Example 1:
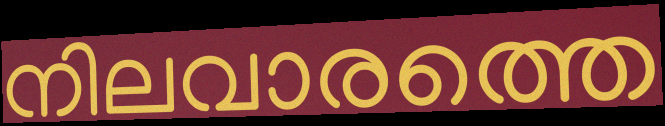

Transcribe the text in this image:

നിലവാരത്തെ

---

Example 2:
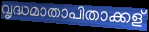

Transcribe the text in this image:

വൃദ്ധമാതാപിതാക്കള്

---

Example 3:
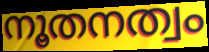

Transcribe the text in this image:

നൂതനത്വം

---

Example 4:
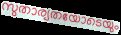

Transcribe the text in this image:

സുതാര്യതയോടെയും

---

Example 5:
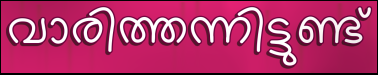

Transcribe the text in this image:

വാരിത്തന്നിട്ടുണ്ട്